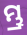
ମ୍ଭ୍ର